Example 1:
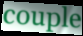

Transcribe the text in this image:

couple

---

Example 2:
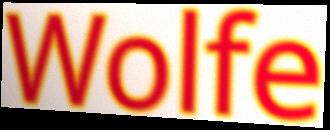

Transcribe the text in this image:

Wolfe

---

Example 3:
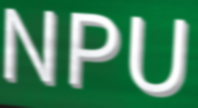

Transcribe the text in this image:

NPU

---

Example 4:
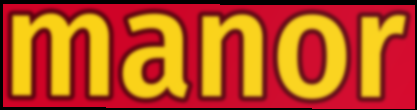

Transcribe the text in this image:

manor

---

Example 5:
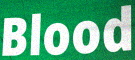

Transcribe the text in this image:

Blood